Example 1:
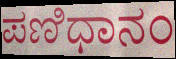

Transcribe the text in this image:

ಪಣಿಧಾನಂ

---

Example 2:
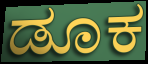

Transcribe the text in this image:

ಡೂಕ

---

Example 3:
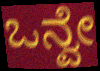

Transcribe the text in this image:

ಒನ್ವೇ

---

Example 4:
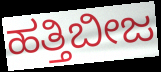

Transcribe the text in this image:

ಹತ್ತಿಬೀಜ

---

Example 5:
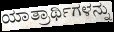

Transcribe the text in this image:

ಯಾತ್ರಾರ್ಥಿಗಳನ್ನು